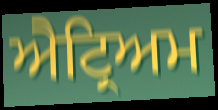
ਐਟ੍ਰਿਅਮ